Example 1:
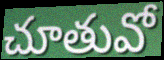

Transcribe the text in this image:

చూతువో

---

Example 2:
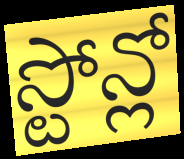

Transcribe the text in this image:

స్టోన్లో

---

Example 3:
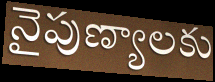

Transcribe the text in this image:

నైపుణ్యాలకు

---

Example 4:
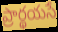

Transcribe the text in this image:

ప్రార్థయసే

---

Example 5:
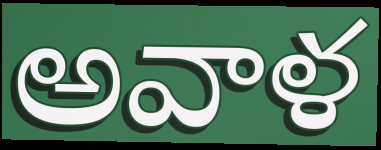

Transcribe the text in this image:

అవాళ